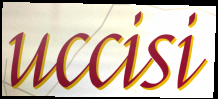
uccisi